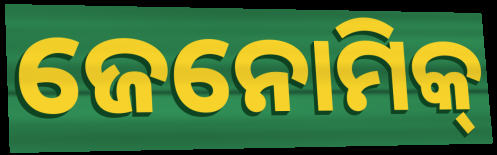
ଜେନୋମିକ୍